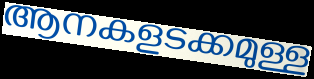
ആനകളടക്കമുള്ള